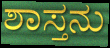
ಶಾಸ್ತನು